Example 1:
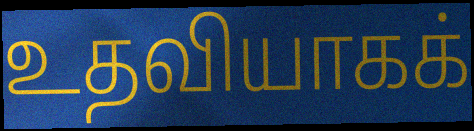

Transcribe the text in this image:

உதவியாகக்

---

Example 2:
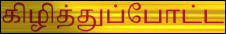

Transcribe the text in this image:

கிழித்துப்போட்ட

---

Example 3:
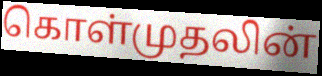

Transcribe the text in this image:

கொள்முதலின்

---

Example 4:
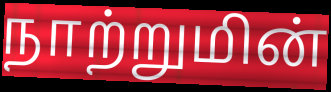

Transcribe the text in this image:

நாற்றுமின்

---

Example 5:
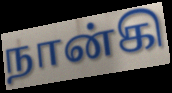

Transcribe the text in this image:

நான்கி